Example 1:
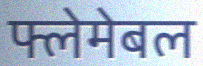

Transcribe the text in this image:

फ्लेमेबल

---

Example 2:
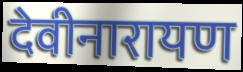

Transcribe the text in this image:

देवीनारायण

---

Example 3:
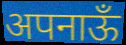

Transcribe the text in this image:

अपनाऊँ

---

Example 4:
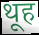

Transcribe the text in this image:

थूह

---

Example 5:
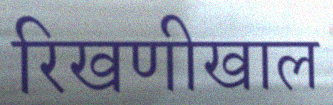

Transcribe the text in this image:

रिखणीखाल